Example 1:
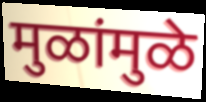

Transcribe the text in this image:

मुळांमुळे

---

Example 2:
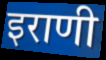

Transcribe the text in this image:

इराणी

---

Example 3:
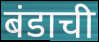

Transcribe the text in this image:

बंडाची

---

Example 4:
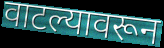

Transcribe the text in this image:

वाटल्यावरून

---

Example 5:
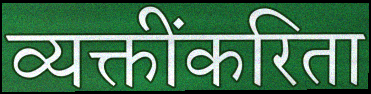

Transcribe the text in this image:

व्यक्तींकरिता